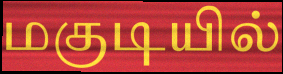
மகுடியில்